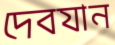
দেবযান